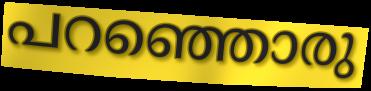
പറഞ്ഞൊരു